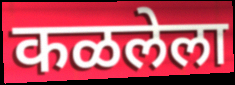
कळलेला